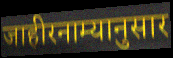
जाहीरनाम्यानुसार